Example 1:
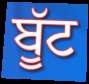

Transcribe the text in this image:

ਬੂੱਟ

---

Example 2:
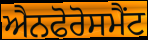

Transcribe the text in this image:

ਐਨਫੋਰੋਸਮੈਂਟ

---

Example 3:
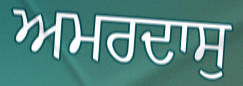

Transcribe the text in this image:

ਅਮਰਦਾਸੁ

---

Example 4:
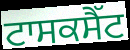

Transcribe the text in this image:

ਟਾਸਕਸੈੱਟ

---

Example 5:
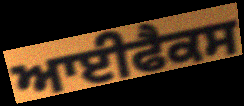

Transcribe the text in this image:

ਆਈਫੈਕਸ